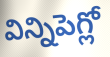
విన్నిపెగ్లో